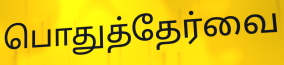
பொதுத்தேர்வை